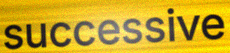
successive